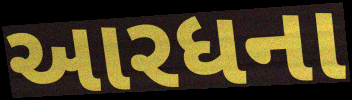
આરધના